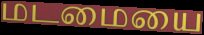
மடமையை